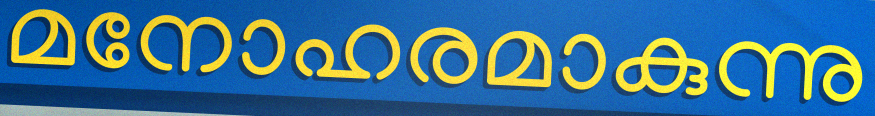
മനോഹരമാകുന്നു